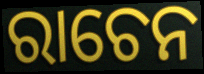
ରାଚେନ